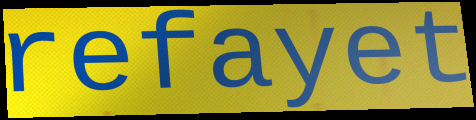
refayet